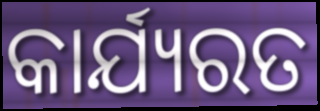
କାର୍ଯ୍ୟରତ